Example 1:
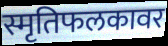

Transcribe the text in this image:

स्मृतिफलकावर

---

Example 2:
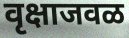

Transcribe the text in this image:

वृक्षाजवळ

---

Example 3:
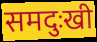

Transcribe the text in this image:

समदुःखी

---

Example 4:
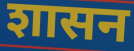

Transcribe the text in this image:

शासन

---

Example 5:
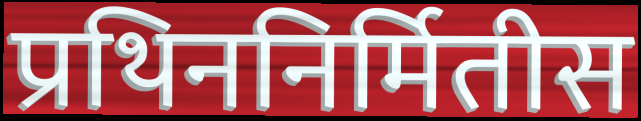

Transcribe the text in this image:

प्रथिननिर्मितीस